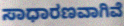
ಸಾಧಾರಣವಾಗಿವೆ